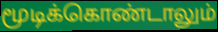
மூடிக்கொண்டாலும்